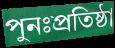
পুনঃপ্রতিষ্ঠা